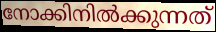
നോക്കിനിൽക്കുന്നത്